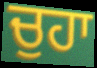
ਚੁਹਾ